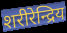
शरीरेन्द्रिय